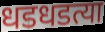
धडधडत्या